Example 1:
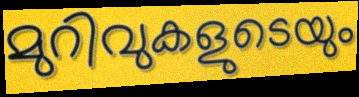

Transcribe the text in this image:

മുറിവുകളുടെയും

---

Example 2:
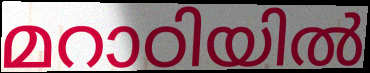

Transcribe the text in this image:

മറാഠിയിൽ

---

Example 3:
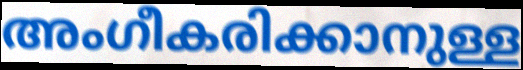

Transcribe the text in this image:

അംഗീകരിക്കാനുള്ള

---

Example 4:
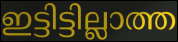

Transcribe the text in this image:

ഇട്ടിട്ടില്ലാത്ത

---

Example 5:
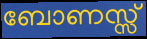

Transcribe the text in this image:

ബോണസ്സ്